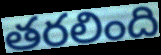
తరలింది